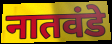
नातवंडे